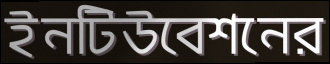
ইনটিউবেশনের